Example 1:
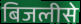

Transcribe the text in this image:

बिजलीसे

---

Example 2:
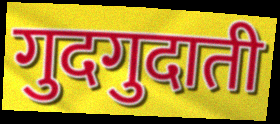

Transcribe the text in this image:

गुदगुदाती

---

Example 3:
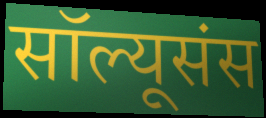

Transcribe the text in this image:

सॉल्यूसंस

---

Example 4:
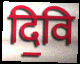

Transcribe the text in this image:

दि॒वि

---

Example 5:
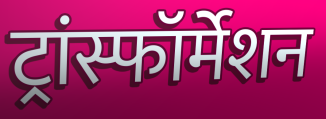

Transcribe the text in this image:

ट्रांस्फॉर्मेशन